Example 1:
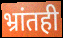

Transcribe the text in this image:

भ्रांतही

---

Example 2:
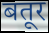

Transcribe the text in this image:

बतूर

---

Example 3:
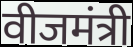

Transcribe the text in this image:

वीजमंत्री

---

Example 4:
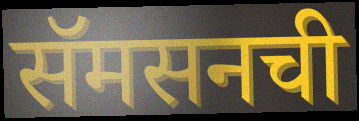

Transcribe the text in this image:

सॅमसनची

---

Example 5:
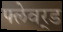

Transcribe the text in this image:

फ्लेवर्ड